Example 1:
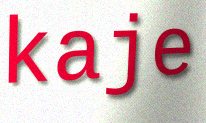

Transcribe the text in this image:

kaje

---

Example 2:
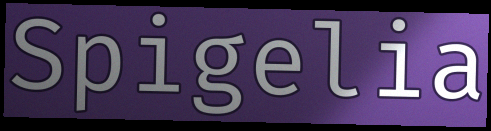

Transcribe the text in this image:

Spigelia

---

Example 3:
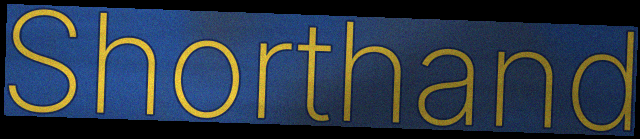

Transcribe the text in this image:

Shorthand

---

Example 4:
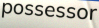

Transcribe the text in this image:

possessor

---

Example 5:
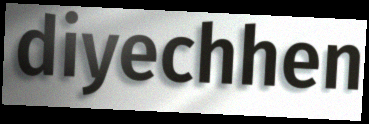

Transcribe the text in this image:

diyechhen